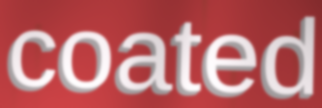
coated